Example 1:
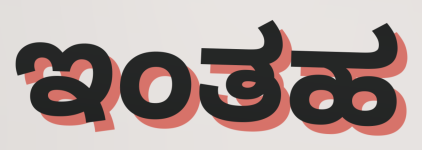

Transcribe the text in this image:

ಇಂತಹ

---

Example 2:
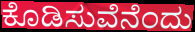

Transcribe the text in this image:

ಕೊಡಿಸುವೆನೆಂದು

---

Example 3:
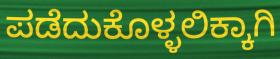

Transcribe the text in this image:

ಪಡೆದುಕೊಳ್ಳಲಿಕ್ಕಾಗಿ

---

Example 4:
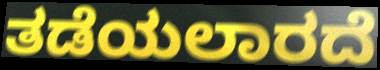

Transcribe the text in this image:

ತಡೆಯಲಾರದೆ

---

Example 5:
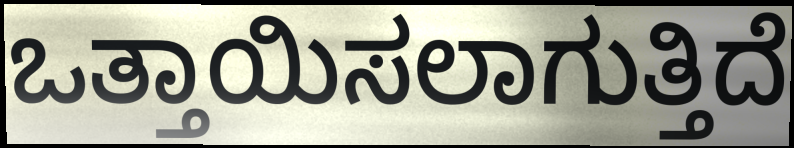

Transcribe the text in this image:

ಒತ್ತಾಯಿಸಲಾಗುತ್ತಿದೆ